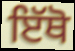
ਇੱਥੋ